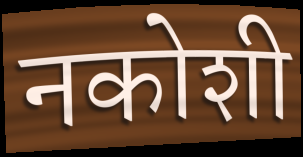
नकोशी